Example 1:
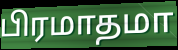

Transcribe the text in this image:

பிரமாதமா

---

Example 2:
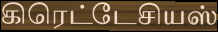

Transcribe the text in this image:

கிரெட்டேசியஸ்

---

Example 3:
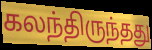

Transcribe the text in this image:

கலந்திருந்தது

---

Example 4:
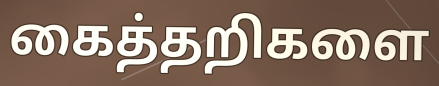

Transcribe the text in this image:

கைத்தறிகளை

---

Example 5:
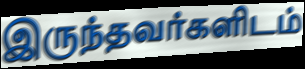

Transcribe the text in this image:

இருந்தவர்களிடம்